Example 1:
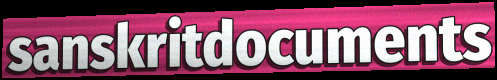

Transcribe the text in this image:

sanskritdocuments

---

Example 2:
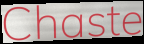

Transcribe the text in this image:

Chaste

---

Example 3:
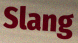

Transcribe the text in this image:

Slang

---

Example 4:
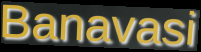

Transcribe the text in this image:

Banavasi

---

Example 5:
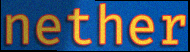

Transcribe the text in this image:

nether